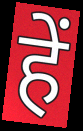
हें